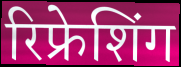
रिफ्रेशिंग